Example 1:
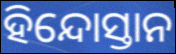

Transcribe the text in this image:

ହିନ୍ଦୋସ୍ତାନ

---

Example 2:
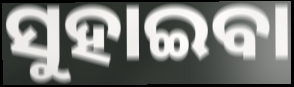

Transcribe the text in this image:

ସୁହାଇବା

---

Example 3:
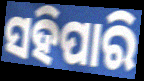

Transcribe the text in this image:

ସହିପାରି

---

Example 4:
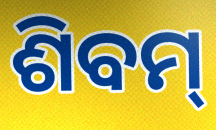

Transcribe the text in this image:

ଶିବମ୍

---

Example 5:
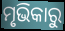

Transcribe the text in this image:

ମୃଭିକାରୁ